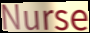
Nurse